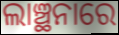
ଲାଞ୍ଛନାରେ